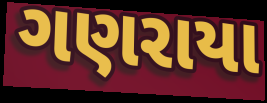
ગણરાયા